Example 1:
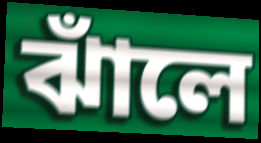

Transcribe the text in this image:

ঝাঁলে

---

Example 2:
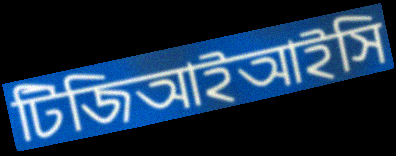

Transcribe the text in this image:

টিজিআইআইসি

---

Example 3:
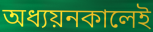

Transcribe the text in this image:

অধ্যয়নকালেই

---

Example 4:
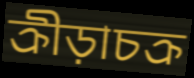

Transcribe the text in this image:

ক্রীড়াচক্র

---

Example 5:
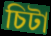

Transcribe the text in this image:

চিটা